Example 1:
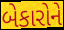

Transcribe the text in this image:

બેકારોને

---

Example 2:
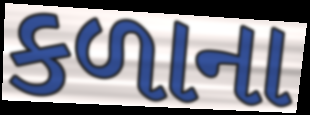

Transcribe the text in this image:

કળાના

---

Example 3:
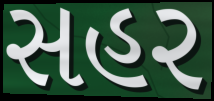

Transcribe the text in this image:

સહર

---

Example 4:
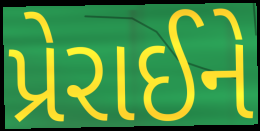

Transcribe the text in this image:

પ્રેરાઈને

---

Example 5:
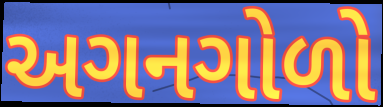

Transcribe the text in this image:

અગનગોળો